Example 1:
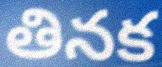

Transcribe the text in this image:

తినక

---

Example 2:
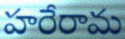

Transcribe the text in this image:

హరేరామ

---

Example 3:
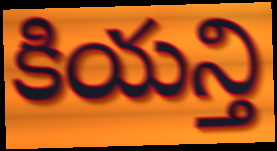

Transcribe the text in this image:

కియన్తి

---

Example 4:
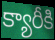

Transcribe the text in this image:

క్యారీకి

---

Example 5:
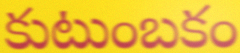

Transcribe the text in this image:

కుటుంబకం